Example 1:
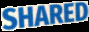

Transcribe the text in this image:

SHARED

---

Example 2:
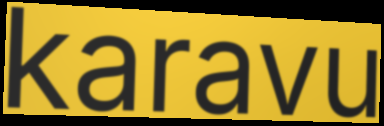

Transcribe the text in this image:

karavu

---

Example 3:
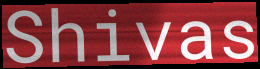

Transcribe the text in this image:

Shivas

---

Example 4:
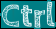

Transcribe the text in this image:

Ctrl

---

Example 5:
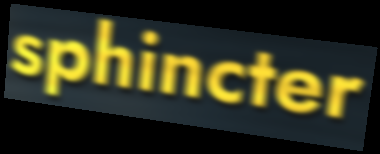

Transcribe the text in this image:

sphincter